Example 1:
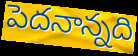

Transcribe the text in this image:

పెదనాన్నది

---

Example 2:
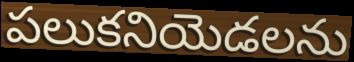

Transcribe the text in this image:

పలుకనియెడలను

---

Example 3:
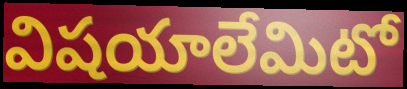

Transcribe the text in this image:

విషయాలేమిటో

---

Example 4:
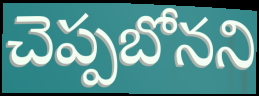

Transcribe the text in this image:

చెప్పబోనని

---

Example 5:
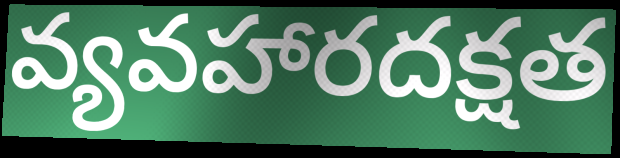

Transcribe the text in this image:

వ్యవహారదక్షత